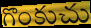
గొంకుచు